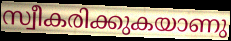
സ്വീകരിക്കുകയാണു